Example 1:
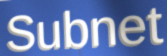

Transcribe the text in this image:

Subnet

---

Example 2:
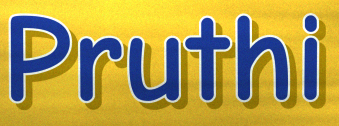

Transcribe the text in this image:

Pruthi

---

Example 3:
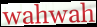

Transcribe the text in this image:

wahwah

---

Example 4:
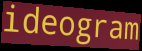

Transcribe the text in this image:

ideogram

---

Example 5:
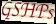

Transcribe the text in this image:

GSHPs